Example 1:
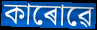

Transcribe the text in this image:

কাৰোৱে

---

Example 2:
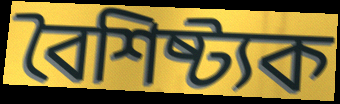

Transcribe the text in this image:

বৈশিষ্ট্যক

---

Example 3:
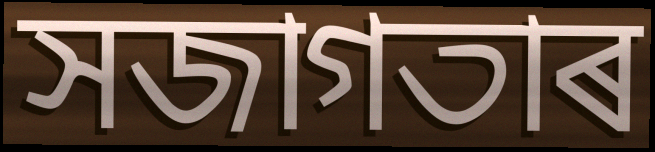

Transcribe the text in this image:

সজাগতাৰ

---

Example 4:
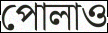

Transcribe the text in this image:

পোলাও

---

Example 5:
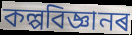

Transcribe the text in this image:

কল্পবিজ্ঞানৰ